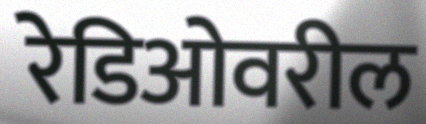
रेडिओवरील